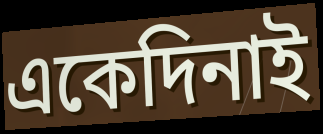
একেদিনাই